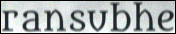
ransubhe